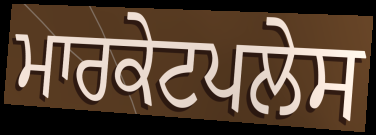
ਮਾਰਕੇਟਪਲੇਸ